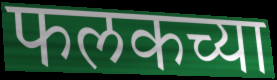
फलकच्या